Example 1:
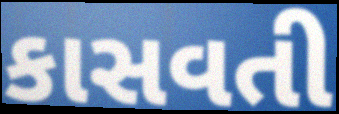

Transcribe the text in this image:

કાસવતી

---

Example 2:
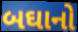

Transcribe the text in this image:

બઘાનો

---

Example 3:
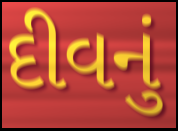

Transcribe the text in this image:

દીવનું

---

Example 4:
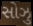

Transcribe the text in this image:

સોઝુ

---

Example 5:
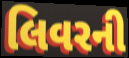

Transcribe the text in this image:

લિવરની